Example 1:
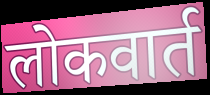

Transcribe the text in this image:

लोकवार्त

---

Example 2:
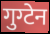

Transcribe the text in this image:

गुग्टेन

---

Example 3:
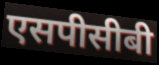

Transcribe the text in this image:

एसपीसीबी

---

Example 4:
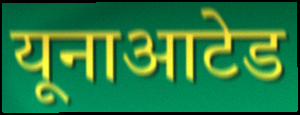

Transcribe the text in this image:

यूनाआटेड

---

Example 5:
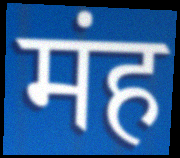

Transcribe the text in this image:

मंह